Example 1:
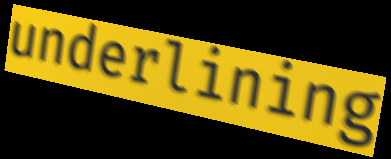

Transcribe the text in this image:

underlining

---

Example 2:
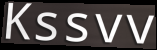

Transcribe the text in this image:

Kssvv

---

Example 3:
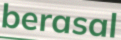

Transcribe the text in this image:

berasal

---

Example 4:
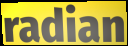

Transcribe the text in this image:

radian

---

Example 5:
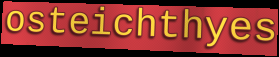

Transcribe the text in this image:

osteichthyes